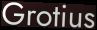
Grotius